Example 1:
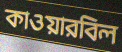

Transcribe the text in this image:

কাওয়ারবিল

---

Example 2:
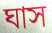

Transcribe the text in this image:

ঘাস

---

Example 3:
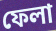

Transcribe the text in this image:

ফেলা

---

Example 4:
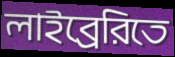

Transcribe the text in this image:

লাইব্রেরিতে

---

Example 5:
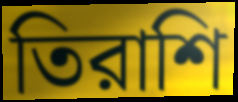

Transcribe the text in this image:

তিরাশি